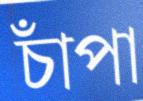
চাঁপা